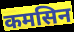
कमसिन